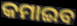
କମାଇବ